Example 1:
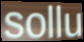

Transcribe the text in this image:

sollu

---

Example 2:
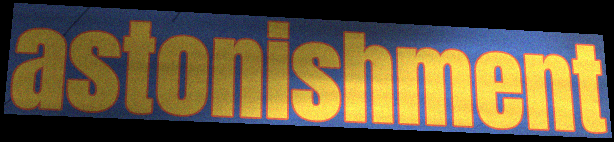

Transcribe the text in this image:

astonishment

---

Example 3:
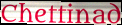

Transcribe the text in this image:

Chettinad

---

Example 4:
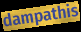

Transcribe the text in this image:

dampathis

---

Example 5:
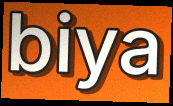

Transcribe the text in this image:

biya